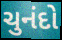
ચુનંદો